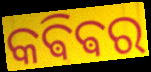
କଵିଵର